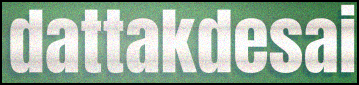
dattakdesai